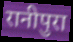
रानीपुरा